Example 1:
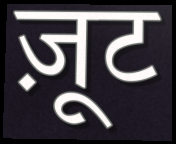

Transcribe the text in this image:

ज़ूट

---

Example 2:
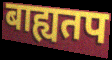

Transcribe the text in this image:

बाह्यतप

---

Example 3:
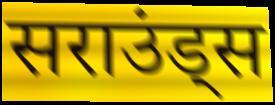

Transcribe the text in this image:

सराउंड्स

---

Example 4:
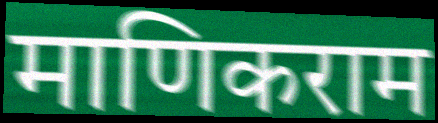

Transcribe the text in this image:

माणिकराम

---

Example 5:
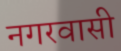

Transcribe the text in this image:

नगरवासी